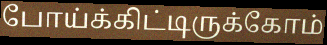
போய்க்கிட்டிருக்கோம்